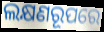
ଲକ୍ଷଣରୂପରେ